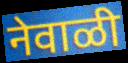
नेवाळी